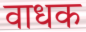
वाधक